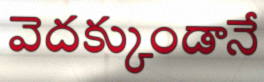
వెదక్కుండానే